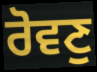
ਰੋਵਣੁ